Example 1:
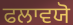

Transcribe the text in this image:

ਫਲਾਵਯੋ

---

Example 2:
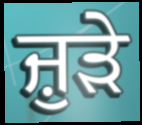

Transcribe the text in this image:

ਜ਼ੁੜੇ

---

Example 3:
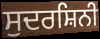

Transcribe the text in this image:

ਸੁਦਰਸ਼ਿਨੀ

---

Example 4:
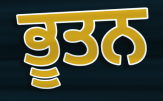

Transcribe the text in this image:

ਭੂਤਨ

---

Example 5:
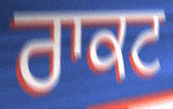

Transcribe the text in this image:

ਰਾਕਟ